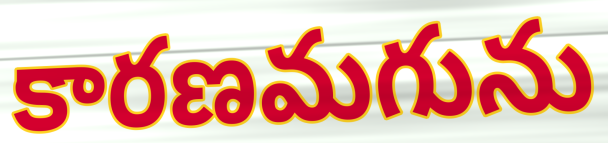
కారణమగును